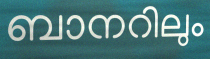
ബാനറിലും